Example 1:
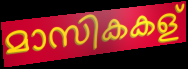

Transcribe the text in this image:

മാസികകള്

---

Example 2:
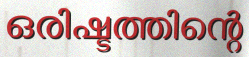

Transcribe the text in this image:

ഒരിഷ്ടത്തിന്റെ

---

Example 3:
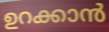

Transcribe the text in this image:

ഉറക്കാൻ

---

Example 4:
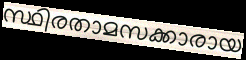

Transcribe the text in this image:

സ്ഥിരതാമസക്കാരായ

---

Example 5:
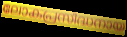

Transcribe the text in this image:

ലോകപ്രസിദ്ധനായ